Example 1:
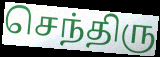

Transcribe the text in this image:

செந்திரு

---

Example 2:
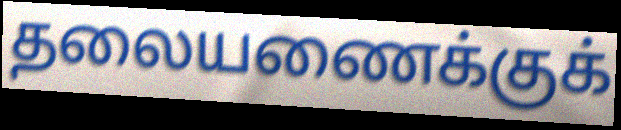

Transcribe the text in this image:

தலையணைக்குக்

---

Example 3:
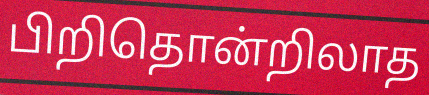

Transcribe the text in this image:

பிறிதொன்றிலாத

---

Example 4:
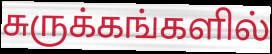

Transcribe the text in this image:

சுருக்கங்களில்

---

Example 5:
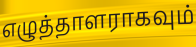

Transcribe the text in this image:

எழுத்தாளராகவும்